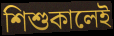
শিশুকালেই